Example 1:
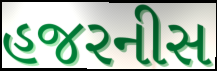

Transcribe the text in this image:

હજરનીસ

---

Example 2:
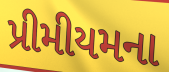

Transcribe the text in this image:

પ્રીમીયમના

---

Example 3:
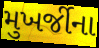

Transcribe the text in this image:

મુખર્જીના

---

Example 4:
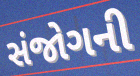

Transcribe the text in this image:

સંજોગની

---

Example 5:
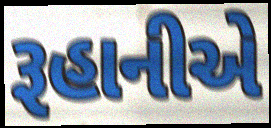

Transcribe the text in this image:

રૂહાનીએ